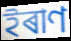
ইৰাণ